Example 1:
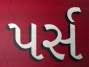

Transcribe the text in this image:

પર્સ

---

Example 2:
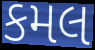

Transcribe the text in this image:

કમલ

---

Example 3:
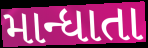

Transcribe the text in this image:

માન્ધાતા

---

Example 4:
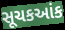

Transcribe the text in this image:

સૂચકઆંક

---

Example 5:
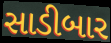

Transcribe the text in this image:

સાડીબાર